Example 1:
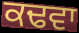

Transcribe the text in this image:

ਕਢਵਾ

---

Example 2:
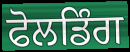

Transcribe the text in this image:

ਫੋਲਡਿੰਗ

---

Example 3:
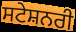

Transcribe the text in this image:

ਸਟੇਸ਼ਨਰੀ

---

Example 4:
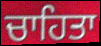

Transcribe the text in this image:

ਚਾਹਿਤਾ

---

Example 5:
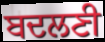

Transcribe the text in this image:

ਬਦਲਣੀ